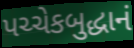
પચ્ચેકબુદ્ધાનં